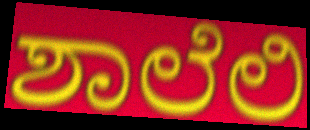
ಶಾಲೆಲಿ